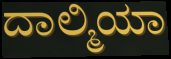
ದಾಲ್ಮಿಯಾ